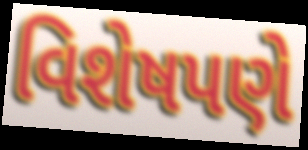
વિશેષપણે